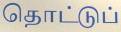
தொட்டுப்